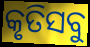
କୃତିସବୁ